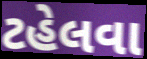
ટહેલવા